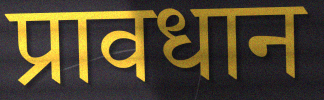
प्रावधान